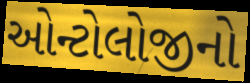
ઓન્ટોલોજીનો